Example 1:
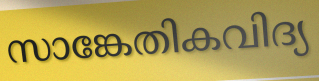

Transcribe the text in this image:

സാങ്കേതികവിദ്യ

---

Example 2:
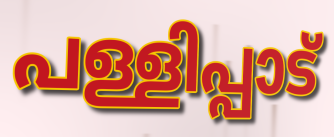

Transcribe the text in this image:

പള്ളിപ്പാട്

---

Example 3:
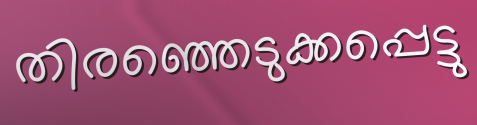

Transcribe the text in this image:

തിരഞ്ഞെടുക്കപ്പെട്ടു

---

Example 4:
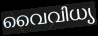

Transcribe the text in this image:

വൈവിധ്യ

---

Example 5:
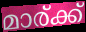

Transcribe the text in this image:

മാര്ക്ക്